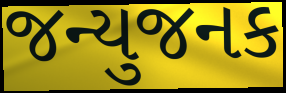
જન્યુજનક